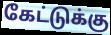
கேட்டுக்கு